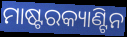
ମାଷ୍ଟରକ୍ୟାଣ୍ଟିନ